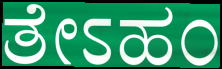
ತೇಽಹಂ